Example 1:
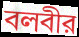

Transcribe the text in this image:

বলবীর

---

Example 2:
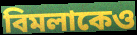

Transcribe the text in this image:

বিমলাকেও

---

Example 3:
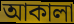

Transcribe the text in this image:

আকালা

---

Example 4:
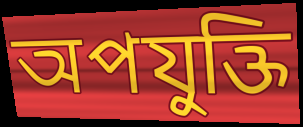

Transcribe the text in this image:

অপযুক্তি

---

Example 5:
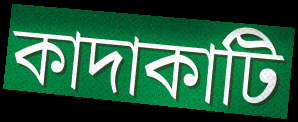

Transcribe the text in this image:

কাদাকাটি